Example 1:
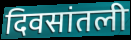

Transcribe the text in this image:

दिवसांतली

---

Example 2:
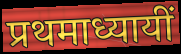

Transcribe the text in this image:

प्रथमाध्यायीं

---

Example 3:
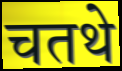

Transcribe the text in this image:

चतथे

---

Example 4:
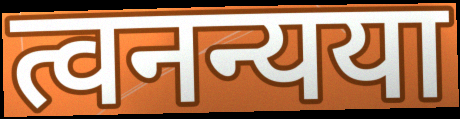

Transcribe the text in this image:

त्वनन्यया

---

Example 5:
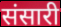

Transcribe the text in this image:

संसारी